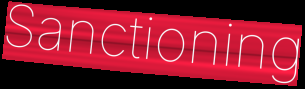
Sanctioning